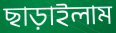
ছাড়াইলাম